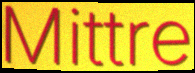
Mittre